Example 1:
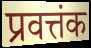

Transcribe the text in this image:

प्रवत्तंक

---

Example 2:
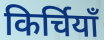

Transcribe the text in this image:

किर्चियाँ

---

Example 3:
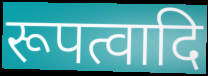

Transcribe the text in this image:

रूपत्वादि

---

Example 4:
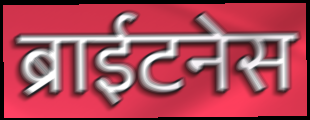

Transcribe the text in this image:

ब्राईटनेस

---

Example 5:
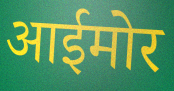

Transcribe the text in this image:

आईमोर